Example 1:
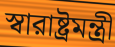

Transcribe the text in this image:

স্বারাষ্ট্রমন্ত্রী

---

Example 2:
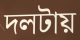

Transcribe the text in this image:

দলটায়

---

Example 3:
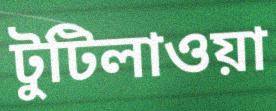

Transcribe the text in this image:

টুটিলাওয়া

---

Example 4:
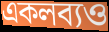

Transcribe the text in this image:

একলব্যও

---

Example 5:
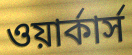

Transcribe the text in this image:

ওয়ার্কার্স